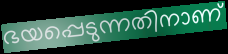
ഭയപ്പെടുന്നതിനാണ്